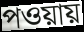
পওয়ায়